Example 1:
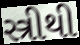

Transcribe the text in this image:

સ્ત્રીથી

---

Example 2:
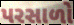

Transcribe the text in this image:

પરસાળો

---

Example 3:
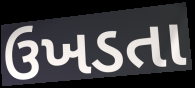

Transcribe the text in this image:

ઉખડતા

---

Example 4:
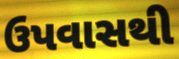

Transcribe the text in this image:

ઉપવાસથી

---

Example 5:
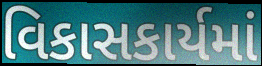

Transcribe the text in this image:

વિકાસકાર્યમાં